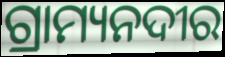
ଗ୍ରାମ୍ୟନଦୀର